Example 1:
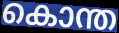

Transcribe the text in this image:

കൊന്ത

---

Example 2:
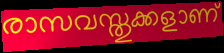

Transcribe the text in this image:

രാസവസ്തുക്കളാണ്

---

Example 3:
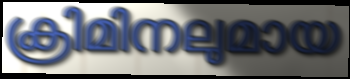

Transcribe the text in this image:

ക്രിമിനലുമായ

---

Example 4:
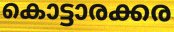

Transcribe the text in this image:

കൊട്ടാരക്കര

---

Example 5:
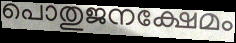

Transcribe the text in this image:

പൊതുജനക്ഷേമം